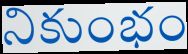
నికుంభం